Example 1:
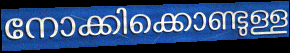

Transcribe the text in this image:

നോക്കിക്കൊണ്ടുള്ള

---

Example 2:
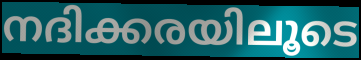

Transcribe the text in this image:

നദിക്കരയിലൂടെ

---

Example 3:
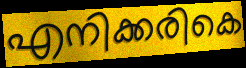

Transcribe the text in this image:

എനിക്കരികെ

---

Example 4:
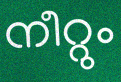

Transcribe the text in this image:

നീറ്റും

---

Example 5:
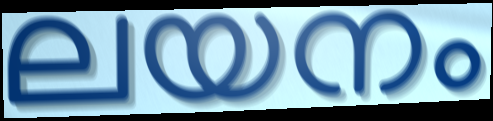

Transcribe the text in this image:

ലയനം